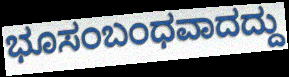
ಭೂಸಂಬಂಧವಾದದ್ದು